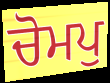
ਚੋਮਪੁ